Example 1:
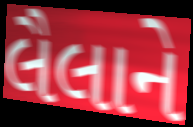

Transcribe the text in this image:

લૈલાને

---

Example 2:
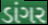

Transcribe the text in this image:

ડાંગર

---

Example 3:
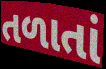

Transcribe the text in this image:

તળાતાં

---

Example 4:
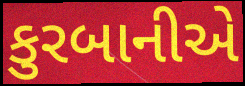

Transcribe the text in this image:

કુરબાનીએ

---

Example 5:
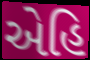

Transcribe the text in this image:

એહિ